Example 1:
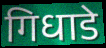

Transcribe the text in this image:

गिधाडे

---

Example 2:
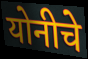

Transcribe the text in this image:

योनीचे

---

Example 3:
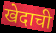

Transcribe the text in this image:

खेदाची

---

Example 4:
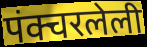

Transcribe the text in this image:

पंक्चरलेली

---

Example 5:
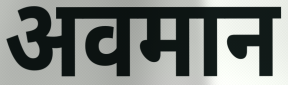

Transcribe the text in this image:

अवमान